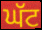
ਘੱਟ